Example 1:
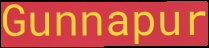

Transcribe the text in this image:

Gunnapur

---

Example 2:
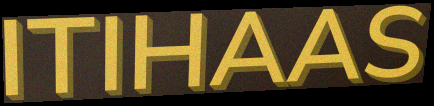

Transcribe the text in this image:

ITIHAAS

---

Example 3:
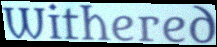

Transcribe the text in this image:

Withered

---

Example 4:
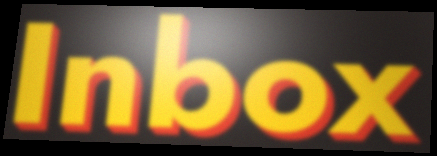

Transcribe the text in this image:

Inbox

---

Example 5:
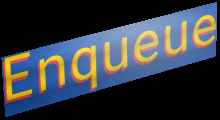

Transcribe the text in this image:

Enqueue